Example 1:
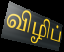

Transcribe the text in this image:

விழிப்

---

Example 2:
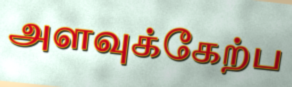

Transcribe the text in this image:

அளவுக்கேற்ப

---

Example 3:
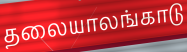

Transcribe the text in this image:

தலையாலங்காடு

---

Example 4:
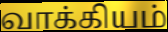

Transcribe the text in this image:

வாக்கியம்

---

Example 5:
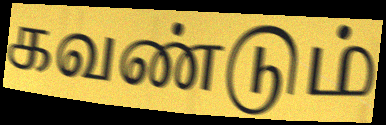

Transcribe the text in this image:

கவண்டும்